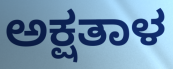
ಅಕ್ಷತಾಳ